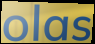
olas